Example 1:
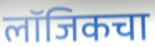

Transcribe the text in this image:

लॉजिकचा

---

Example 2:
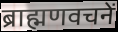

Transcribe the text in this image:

ब्राह्मणवचनें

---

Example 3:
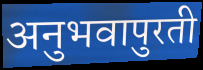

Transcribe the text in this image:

अनुभवापुरती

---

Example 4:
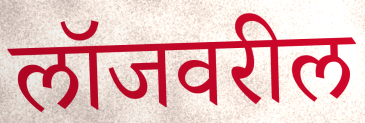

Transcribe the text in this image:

लॉजवरील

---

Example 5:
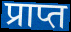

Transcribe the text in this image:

प्राप्त